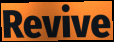
Revive